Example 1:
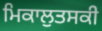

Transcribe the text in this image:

ਮਿਕਾਲੁਤਸਕੀ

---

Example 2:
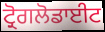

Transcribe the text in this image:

ਟ੍ਰੋਗਲੋਡਾਈਟ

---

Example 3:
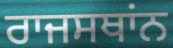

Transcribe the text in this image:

ਰਾਜਸਥਾਂਨ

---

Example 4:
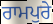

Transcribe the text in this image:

ਰਾਮਪੁਰੇ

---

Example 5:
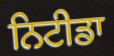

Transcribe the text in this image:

ਨਿਟੀਡਾ